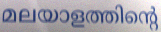
മലയാളത്തിന്റെ